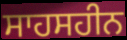
ਸਾਹਸਹੀਨ